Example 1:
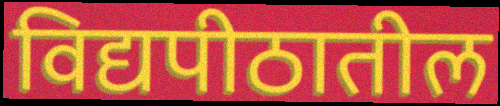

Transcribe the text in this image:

विद्यपीठातील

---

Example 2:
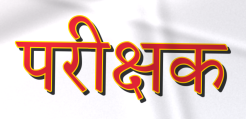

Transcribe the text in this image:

परीक्षक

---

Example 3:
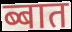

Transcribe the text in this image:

ब्बात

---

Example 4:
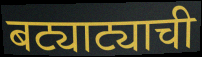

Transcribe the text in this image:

बट्याट्याची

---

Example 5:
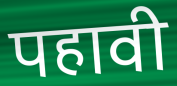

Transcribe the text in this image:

पहावी